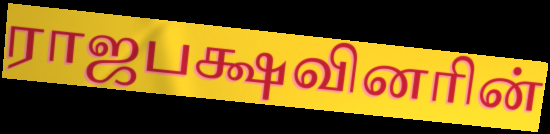
ராஜபக்ஷவினரின்